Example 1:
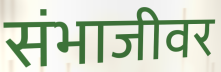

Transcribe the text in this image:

संभाजीवर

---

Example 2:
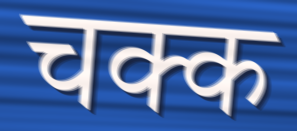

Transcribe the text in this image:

चक्क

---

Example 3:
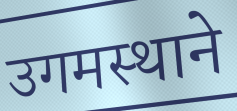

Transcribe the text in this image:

उगमस्थाने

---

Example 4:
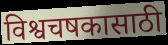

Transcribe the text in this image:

विश्वचषकासाठी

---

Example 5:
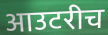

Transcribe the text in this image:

आउटरीच